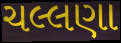
ચલ્લણા